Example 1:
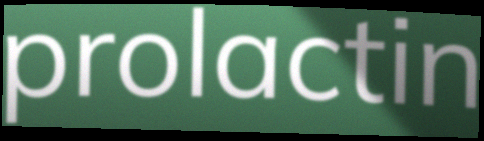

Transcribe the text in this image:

prolactin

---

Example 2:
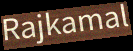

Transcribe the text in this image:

Rajkamal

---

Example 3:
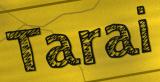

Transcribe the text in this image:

Tarai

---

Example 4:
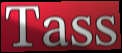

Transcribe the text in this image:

Tass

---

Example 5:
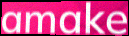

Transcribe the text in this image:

amake